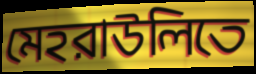
মেহরাউলিতে